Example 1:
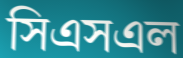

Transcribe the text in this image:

সিএসএল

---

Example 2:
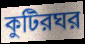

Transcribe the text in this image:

কুটিরঘর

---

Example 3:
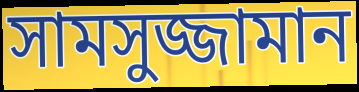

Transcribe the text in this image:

সামসুজ্জামান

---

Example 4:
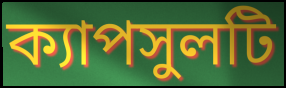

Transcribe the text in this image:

ক্যাপসুলটি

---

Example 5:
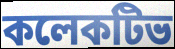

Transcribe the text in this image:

কলেকটিভ